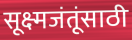
सूक्ष्मजंतूंसाठी